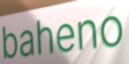
baheno